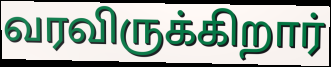
வரவிருக்கிறார்